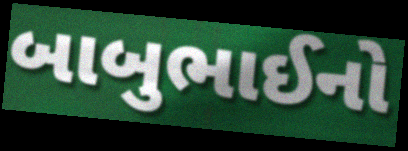
બાબુભાઈનો